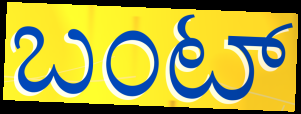
ಬಂಟ್